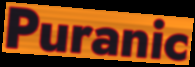
Puranic